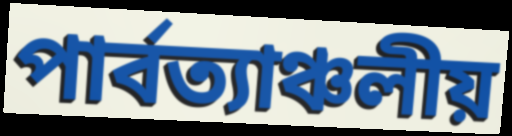
পার্বত্যাঞ্চলীয়